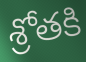
శ్రోతకి